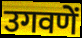
उगवणें